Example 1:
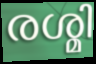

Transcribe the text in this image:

രശ്മി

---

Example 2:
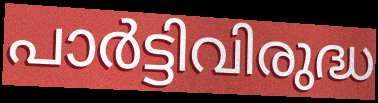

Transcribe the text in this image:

പാർട്ടിവിരുദ്ധ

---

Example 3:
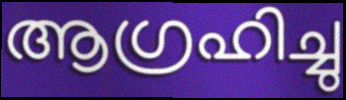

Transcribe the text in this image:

ആഗ്രഹിച്ചു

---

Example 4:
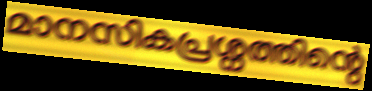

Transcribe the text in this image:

മാനസികപ്രശ്നത്തിന്റെ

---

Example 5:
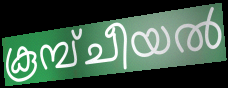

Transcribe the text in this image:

കൂമ്പ്ചീയൽ